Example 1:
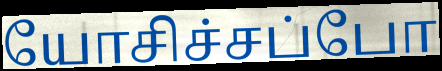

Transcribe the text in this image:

யோசிச்சப்போ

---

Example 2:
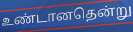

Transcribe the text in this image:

உண்டானதென்று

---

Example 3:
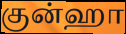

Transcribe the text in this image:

குன்ஹா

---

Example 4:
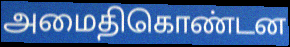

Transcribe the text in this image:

அமைதிகொண்டன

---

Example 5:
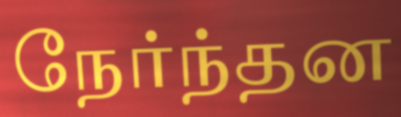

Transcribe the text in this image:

நேர்ந்தன